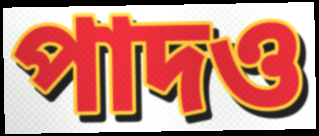
পাদও